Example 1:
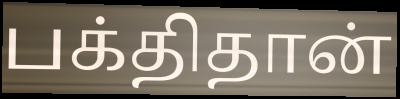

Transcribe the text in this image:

பக்திதான்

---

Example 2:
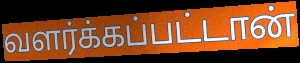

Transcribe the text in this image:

வளர்க்கப்பட்டான்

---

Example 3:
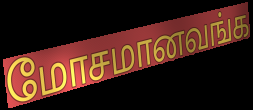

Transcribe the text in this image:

மோசமானவங்க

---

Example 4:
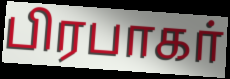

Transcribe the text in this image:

பிரபாகர்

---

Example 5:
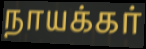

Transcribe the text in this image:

நாயக்கர்